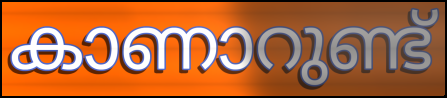
കാണാറുണ്ട്